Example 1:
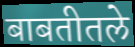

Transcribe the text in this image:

बाबतीतले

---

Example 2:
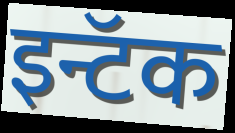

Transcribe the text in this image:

इन्टॅक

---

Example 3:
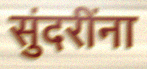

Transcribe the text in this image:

सुंदरींना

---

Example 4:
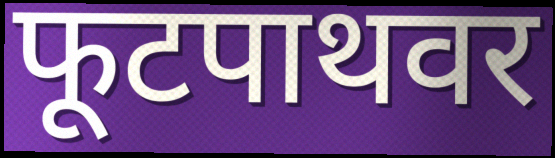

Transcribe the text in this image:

फूटपाथवर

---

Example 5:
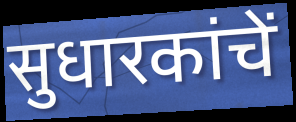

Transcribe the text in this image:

सुधारकांचें